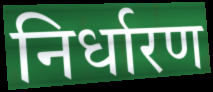
निर्धारण